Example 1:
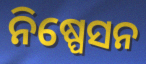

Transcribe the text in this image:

ନିଷ୍ପେସନ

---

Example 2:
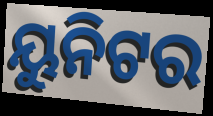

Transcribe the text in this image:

ୟୁନିଟର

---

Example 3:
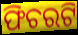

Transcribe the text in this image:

ଫିଚରଟି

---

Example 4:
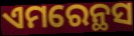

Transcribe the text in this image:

ଏମରେନ୍ଥସ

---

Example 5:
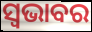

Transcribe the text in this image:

ସ୍ୱଭାବର